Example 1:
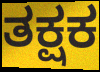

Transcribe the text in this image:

ತಕ್ಷಕ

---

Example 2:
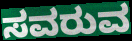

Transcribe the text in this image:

ಸವರುವ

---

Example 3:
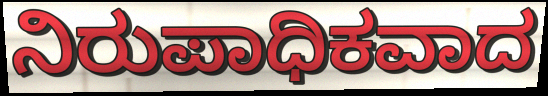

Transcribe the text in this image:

ನಿರುಪಾಧಿಕವಾದ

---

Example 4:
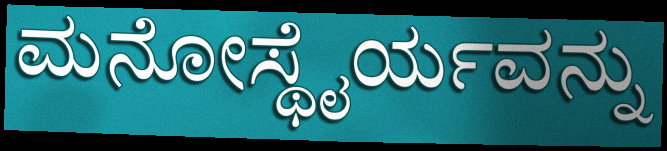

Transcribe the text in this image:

ಮನೋಸ್ಥೈರ್ಯವನ್ನು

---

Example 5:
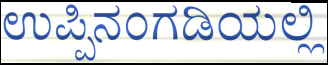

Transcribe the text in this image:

ಉಪ್ಪಿನಂಗಡಿಯಲ್ಲಿ